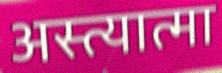
अस्त्यात्मा